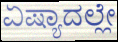
ಏಷ್ಯಾದಲ್ಲೇ